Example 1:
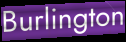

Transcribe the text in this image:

Burlington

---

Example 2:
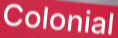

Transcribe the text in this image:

Colonial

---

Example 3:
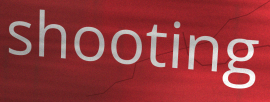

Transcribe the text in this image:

shooting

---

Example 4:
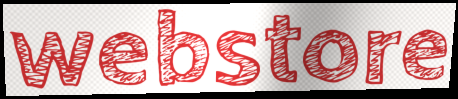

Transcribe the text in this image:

webstore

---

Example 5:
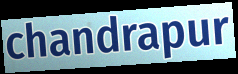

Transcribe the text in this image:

chandrapur